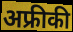
अफ्रीकी